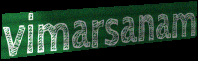
vimarsanam